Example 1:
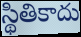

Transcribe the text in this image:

స్థితికాదు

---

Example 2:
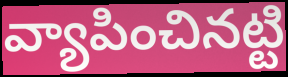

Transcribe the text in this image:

వ్యాపించినట్టి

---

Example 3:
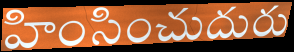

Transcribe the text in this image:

హింసించుదురు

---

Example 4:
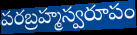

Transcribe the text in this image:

పరబ్రహ్మస్వరూపం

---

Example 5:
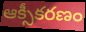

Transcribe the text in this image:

ఆక్సీకరణం